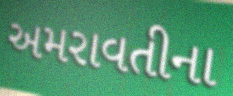
અમરાવતીના